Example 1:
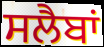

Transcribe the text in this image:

ਸਲੈਬਾਂ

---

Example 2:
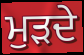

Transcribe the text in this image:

ਮੁਡ਼ਦੇ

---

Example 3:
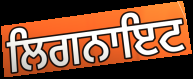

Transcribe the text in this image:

ਲਿਗਨਾਇਟ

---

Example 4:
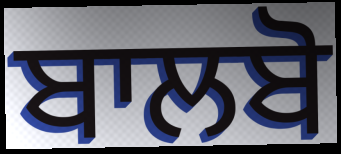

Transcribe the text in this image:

ਬਾਲਬੋ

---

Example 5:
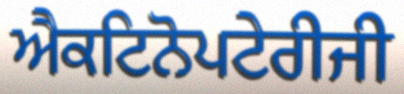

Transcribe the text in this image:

ਐਕਟਿਨੋਪਟੇਰੀਜੀ